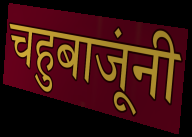
चहुबाजूंनी